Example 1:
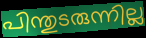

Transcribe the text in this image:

പിന്തുടരുന്നില്ല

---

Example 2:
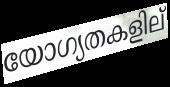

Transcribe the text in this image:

യോഗ്യതകളില്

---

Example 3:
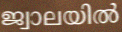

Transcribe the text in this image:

ജ്വാലയിൽ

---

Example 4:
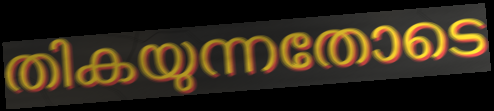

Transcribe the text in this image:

തികയുന്നതോടെ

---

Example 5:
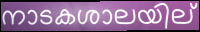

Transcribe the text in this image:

നാടകശാലയില്